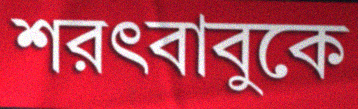
শরৎবাবুকে